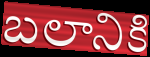
బలానికి